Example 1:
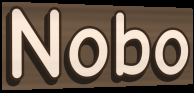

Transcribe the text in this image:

Nobo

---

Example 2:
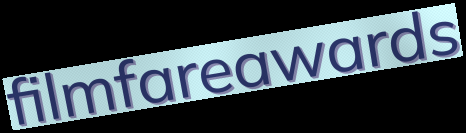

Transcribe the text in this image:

filmfareawards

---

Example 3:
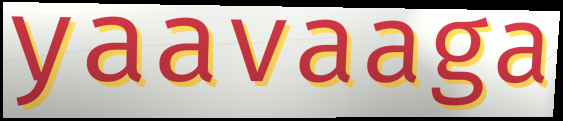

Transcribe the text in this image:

yaavaaga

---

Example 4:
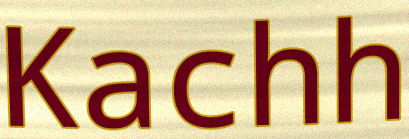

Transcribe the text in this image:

Kachh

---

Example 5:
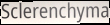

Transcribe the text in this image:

Sclerenchyma